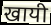
खायी